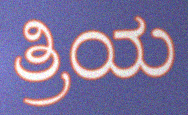
ತ್ರಿಯ